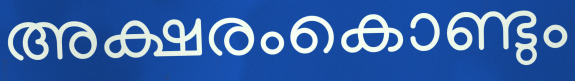
അക്ഷരംകൊണ്ടും